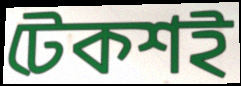
টেকশই